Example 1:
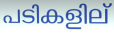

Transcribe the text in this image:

പടികളില്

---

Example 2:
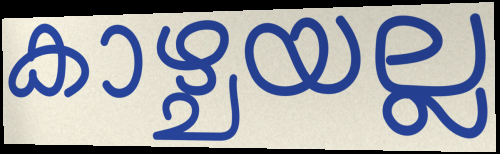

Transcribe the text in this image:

കാഴ്ചയല്ല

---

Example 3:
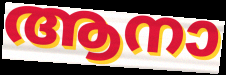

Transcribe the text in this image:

ആനാ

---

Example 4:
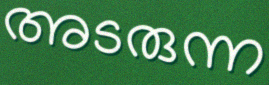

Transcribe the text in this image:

അടരുന്ന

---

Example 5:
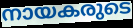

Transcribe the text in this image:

നായകരുടെ